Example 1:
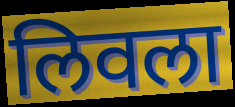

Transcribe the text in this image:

लिवला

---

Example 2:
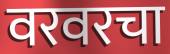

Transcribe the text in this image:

वरवरचा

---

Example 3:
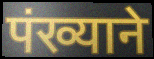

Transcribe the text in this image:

पंख्याने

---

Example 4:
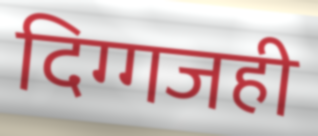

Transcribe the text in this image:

दिग्गजही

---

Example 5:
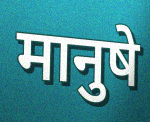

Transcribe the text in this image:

मानुषे